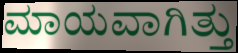
ಮಾಯವಾಗಿತ್ತು